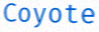
Coyote